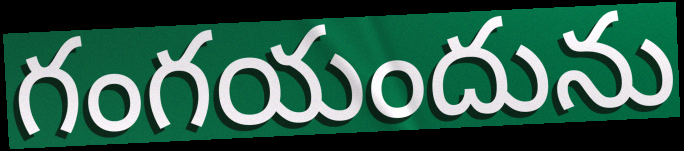
గంగయందును